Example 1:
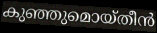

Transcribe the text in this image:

കുഞ്ഞുമൊയ്തീൻ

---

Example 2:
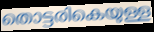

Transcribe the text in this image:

തൊട്ടരികെയുള്ള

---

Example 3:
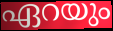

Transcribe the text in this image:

ഏറയും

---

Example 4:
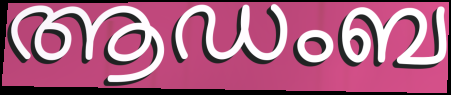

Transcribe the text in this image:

ആഡംബ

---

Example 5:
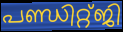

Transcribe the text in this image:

പണ്ഡിറ്റ്ജി